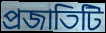
প্রজাতিটি